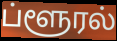
ப்ளூரல்